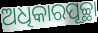
ଅଧିକାରପୂଚ୍ଛା